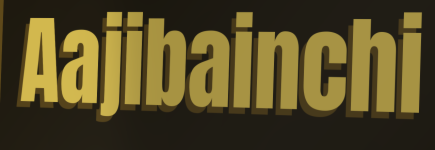
Aajibainchi